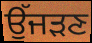
ਉੱਜੜਣ